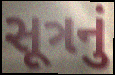
સૂત્રનું